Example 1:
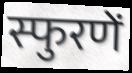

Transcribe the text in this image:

स्फुरणें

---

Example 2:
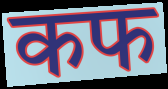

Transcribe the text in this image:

कफ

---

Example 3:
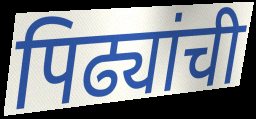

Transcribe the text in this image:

पिढ्यांची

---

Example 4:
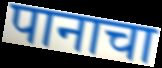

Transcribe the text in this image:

पानाचा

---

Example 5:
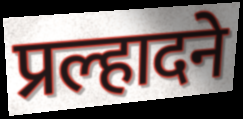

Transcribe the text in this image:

प्रल्हादने